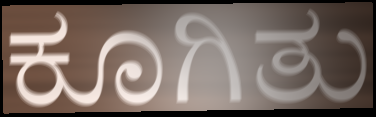
ಕೂಗಿತು